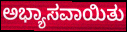
ಅಭ್ಯಾಸವಾಯಿತು